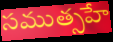
సముత్సహే